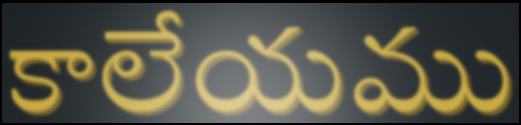
కాలేయము